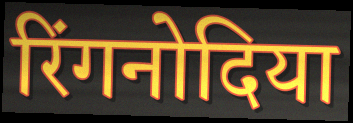
रिंगनोदिया